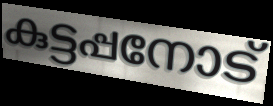
കുട്ടപ്പനോട്